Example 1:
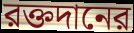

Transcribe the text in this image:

রক্তদানের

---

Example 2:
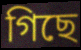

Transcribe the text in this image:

গিছে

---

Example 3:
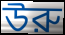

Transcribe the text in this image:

উরু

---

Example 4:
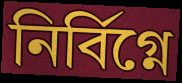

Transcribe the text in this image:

নির্বিগ্নে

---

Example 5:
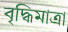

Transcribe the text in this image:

বৃদ্ধিমাত্রা